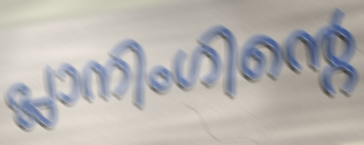
പ്ലാനിംഗിന്റെ